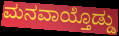
ಮನವಾಯ್ತೊಡ್ಡು